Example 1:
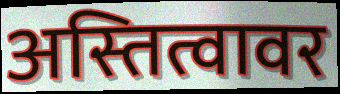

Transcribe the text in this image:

अस्तित्वावर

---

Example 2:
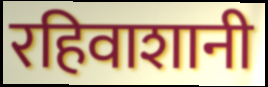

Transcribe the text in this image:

रहिवाशानी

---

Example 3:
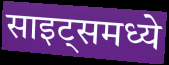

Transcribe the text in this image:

साइट्समध्ये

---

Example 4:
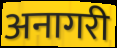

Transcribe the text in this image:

अनागरी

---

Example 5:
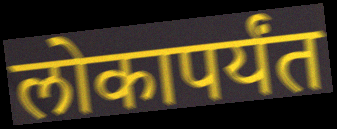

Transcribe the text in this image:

लोकापर्यंत